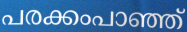
പരക്കംപാഞ്ഞ്